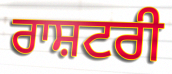
ਰਾਸ਼ਟਰੀ